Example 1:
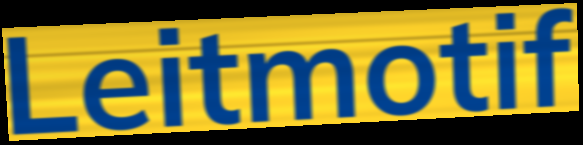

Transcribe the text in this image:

Leitmotif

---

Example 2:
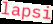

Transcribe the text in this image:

lapsi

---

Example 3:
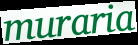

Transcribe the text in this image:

muraria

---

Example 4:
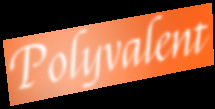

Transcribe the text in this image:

Polyvalent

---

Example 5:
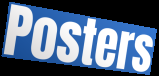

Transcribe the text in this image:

Posters